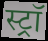
स्ट्रॉ